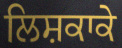
ਲਿਸ਼ਕਾਕੇ